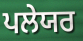
ਪਲੇਯਰ